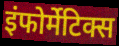
इंफोर्मेटिक्स